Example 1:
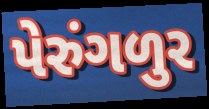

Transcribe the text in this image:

પેરુંગળુર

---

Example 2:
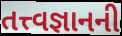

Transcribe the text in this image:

તત્ત્વજ્ઞાનની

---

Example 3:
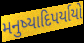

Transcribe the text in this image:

મનુષ્યાદિપર્યાયો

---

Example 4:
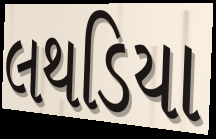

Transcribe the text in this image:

લથડિયા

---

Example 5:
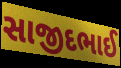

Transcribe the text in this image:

સાજીદભાઈ